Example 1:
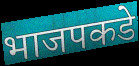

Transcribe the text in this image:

भाजपकडे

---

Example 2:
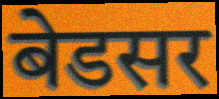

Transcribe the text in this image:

बेडसर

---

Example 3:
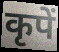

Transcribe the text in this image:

कृपें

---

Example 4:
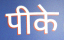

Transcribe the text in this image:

पीके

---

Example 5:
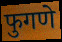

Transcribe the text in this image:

फुगणे